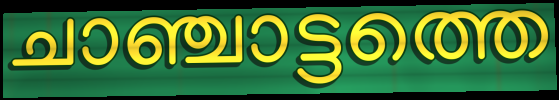
ചാഞ്ചാട്ടത്തെ